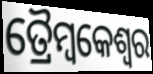
ତ୍ରୈମ୍ବକେଶ୍ୱର